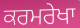
ਕਰਮਰੇਖਾ